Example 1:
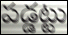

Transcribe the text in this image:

పడ్డట్టు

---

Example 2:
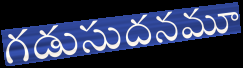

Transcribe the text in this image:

గడుసుదనమూ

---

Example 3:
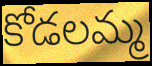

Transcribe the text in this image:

కోడలమ్మ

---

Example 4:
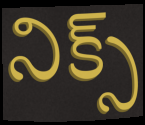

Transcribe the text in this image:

నిక్స్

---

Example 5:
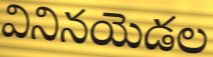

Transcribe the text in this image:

వినినయెడల